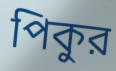
পিকুর